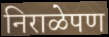
निराळेपण